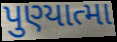
પુણ્યાત્મા